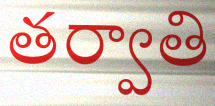
తర్వాతి